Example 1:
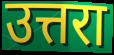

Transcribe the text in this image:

उत्तरा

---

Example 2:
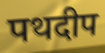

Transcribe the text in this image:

पथदीप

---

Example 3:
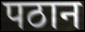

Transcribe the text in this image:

पठान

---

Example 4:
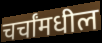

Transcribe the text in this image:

चर्चांमधील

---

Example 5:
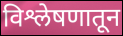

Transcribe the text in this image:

विश्लेषणातून